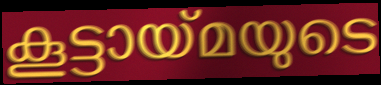
കൂട്ടായ്മയുടെ